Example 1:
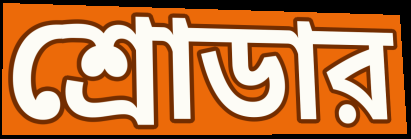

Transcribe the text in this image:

শ্রোডার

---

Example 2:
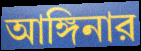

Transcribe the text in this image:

আঙ্গিনার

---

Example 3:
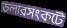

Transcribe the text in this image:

ডলারসংকটে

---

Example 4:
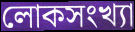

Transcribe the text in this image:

লোকসংখ্যা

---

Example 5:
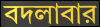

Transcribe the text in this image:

বদলাবার